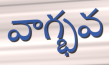
వాగ్భవ